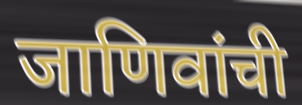
जाणिवांची